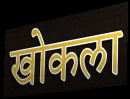
खोकला